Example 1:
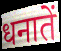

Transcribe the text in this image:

धनातें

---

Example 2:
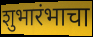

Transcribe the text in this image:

शुभारंभाचा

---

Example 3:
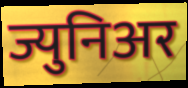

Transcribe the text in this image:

ज्युनिअर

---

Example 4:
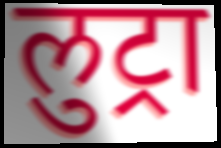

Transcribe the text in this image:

लुट्रा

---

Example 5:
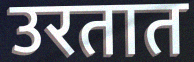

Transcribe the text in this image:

उरतात